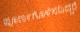
ಪೂರ್ಣಗೊಳಿಸದಿದ್ದರೆ